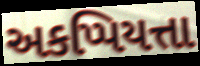
અકપ્પિયત્તા